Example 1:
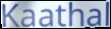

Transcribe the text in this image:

Kaathal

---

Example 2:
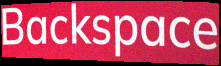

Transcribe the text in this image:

Backspace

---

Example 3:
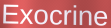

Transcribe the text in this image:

Exocrine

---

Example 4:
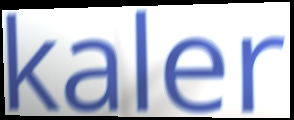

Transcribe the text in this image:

kaler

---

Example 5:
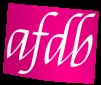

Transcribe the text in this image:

afdb